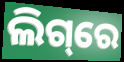
ଲିଗ୍‌ରେ